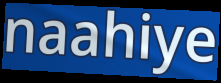
naahiye